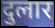
दुलार